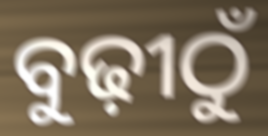
ବୁଢ଼ୀଠୁଁ